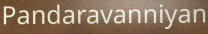
Pandaravanniyan